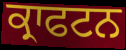
ਕ੍ਰਾਫਟਨ